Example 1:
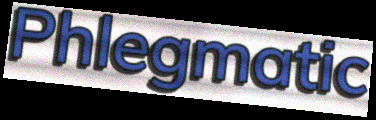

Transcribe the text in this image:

Phlegmatic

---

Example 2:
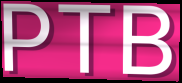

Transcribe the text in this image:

PTB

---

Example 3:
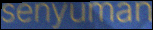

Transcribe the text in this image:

senyuman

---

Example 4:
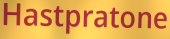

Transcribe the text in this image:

Hastpratone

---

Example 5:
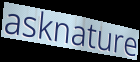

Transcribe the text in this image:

asknature